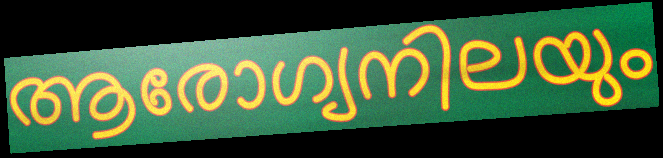
ആരോഗ്യനിലയും